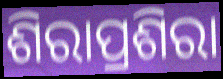
ଶିରାପ୍ରଶିରା